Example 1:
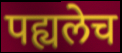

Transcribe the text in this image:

पह्यलेच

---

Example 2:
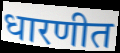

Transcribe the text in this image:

धारणीत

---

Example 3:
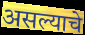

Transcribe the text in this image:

असल्‍याचे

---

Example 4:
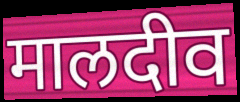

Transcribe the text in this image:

मालदीव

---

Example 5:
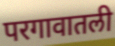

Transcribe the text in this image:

परगावातली